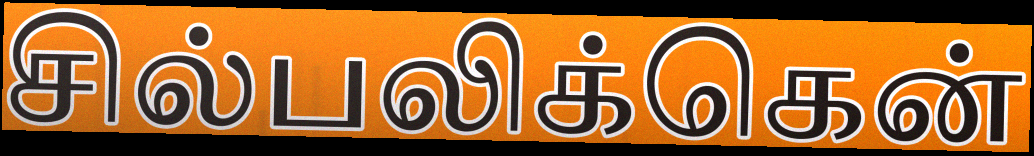
சில்பலிக்கென்